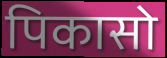
पिकासो